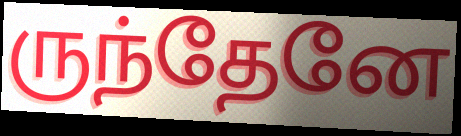
ருந்தேனே